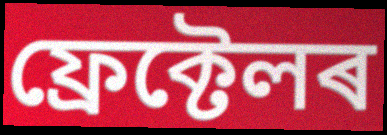
ফ্ৰেক্টেলৰ